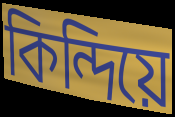
কিন্দিয়ে